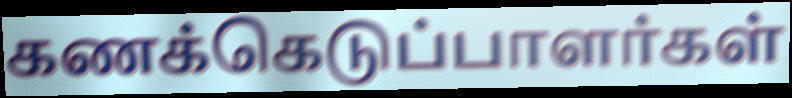
கணக்கெடுப்பாளர்கள்